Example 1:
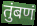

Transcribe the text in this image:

तुंबणं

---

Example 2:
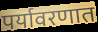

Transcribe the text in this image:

पर्यावरणात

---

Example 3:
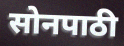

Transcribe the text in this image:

सोनपाठी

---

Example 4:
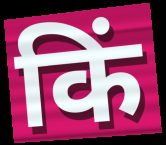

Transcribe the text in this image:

किं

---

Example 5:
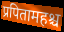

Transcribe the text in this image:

प्रपितामहश्च